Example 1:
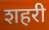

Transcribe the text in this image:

शहरी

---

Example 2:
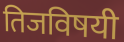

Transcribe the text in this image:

तिजविषयी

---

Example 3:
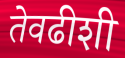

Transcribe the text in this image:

तेवढीशी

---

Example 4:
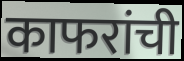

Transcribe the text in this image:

काफरांची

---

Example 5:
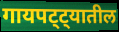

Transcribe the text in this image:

गायपट्ट्यातील